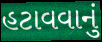
હટાવવાનું